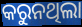
କରୁନଥିଲା